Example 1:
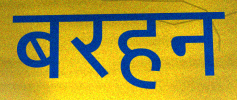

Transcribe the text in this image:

बरहन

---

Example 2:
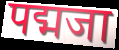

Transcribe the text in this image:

पद्मजा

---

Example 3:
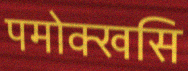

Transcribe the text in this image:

पमोक्खसि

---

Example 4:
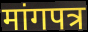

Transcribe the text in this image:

मांगपत्र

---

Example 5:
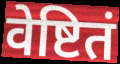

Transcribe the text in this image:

वेष्टितं